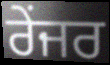
ਰੇਂਜਰ